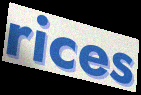
rices